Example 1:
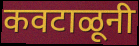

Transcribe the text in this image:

कवटाळूनी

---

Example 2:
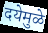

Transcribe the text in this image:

दयेमुळे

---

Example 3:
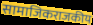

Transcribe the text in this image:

सामाजिकराजकीय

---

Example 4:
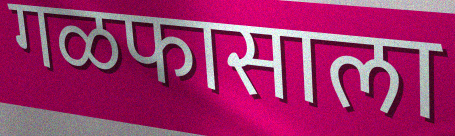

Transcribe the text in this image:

गळफासाला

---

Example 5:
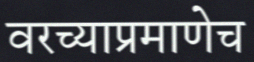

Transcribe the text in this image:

वरच्याप्रमाणेच